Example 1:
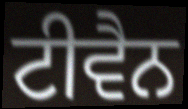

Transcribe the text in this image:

ਟੀਵੈਨ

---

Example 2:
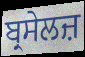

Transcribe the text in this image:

ਬ੍ਰਸੇਲਜ਼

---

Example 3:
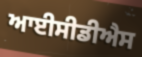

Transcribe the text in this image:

ਆਈਸੀਡੀਐਸ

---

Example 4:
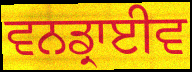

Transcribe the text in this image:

ਵਨਡ੍ਰਾਈਵ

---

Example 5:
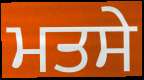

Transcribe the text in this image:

ਮਤਸੇ